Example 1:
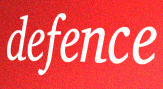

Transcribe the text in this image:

defence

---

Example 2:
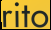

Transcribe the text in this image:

rito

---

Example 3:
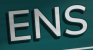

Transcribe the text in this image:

ENS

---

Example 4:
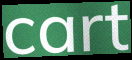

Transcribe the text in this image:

cart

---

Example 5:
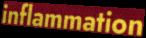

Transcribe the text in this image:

inflammation